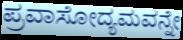
ಪ್ರವಾಸೋದ್ಯಮವನ್ನೇ